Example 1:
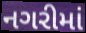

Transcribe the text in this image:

નગરીમાં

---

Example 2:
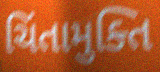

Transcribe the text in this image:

ચિંતામુક્તિ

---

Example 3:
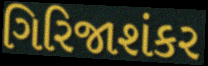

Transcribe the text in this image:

ગિરિજાશંકર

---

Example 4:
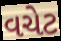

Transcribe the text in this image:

વચેટ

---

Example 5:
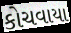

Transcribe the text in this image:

કોચવાયા